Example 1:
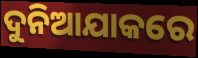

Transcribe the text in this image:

ଦୁନିଆଯାକରେ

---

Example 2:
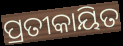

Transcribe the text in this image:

ପ୍ରତୀକାୟିତ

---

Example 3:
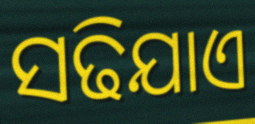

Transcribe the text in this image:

ସଢିଯାଏ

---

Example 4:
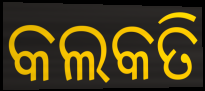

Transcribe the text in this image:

କଲକତି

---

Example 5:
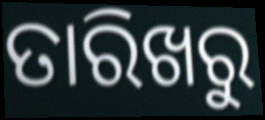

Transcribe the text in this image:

ତାରିଖରୁ